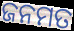
ଜନମତ